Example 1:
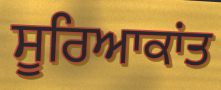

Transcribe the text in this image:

ਸੂਰਿਆਕਾਂਤ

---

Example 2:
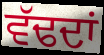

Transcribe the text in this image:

ਵੱਢਦਾਂ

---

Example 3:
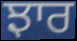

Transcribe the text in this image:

ਝਾਰ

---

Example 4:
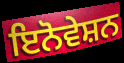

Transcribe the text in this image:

ਇਨੋਵੇਸ਼ਨ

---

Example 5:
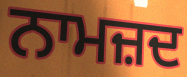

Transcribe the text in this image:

ਨਾਮਜ਼ਦ